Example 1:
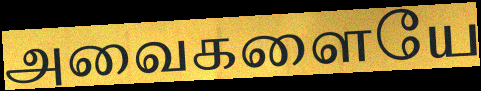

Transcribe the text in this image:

அவைகளையே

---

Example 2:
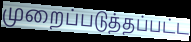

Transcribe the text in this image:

முறைப்படுத்தப்பட்ட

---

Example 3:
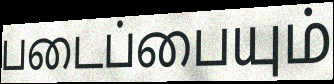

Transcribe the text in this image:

படைப்பையும்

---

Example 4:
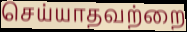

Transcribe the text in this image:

செய்யாதவற்றை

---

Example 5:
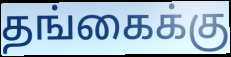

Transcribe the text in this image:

தங்கைக்கு